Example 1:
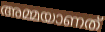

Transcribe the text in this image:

അമ്മയാണത്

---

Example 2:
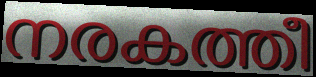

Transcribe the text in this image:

നരകത്തീ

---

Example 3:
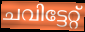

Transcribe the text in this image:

ചവിട്ടേറ്റ്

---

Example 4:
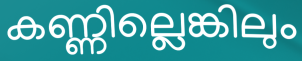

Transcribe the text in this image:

കണ്ണില്ലെങ്കിലും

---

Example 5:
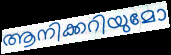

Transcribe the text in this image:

ആനിക്കറിയുമോ